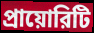
প্রায়োরিটি